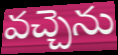
వచ్చెను